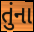
તુંના